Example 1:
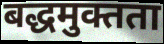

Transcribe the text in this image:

बद्धमुक्तता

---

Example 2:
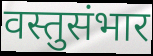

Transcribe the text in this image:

वस्तुसंभार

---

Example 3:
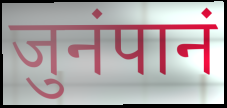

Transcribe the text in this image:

जुनंपानं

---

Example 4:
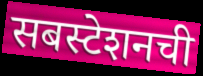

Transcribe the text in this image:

सबस्टेशनची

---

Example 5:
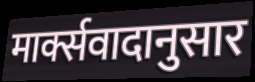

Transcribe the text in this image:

मार्क्सवादानुसार